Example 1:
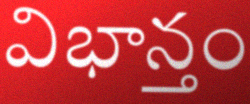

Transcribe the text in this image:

విభాన్తం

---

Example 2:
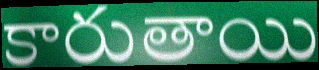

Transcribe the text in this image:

కారుతాయి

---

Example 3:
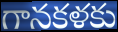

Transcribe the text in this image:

గానకళకు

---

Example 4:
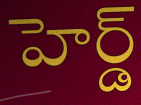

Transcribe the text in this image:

హెర్డ్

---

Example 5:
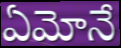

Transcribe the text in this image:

ఏమోనే